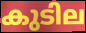
കുടില